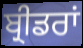
ਬ੍ਰੀਡਰਾਂ